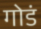
गोडं